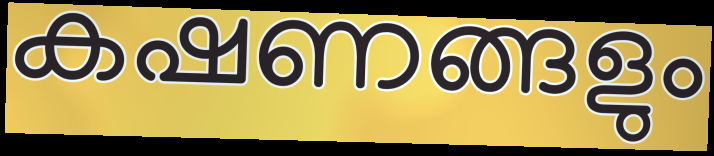
കഷണങ്ങളും